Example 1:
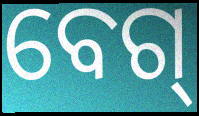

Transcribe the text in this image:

ବେଗ୍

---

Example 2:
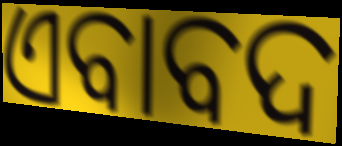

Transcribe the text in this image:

ଏବାବଦ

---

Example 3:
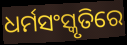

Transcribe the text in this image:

ଧର୍ମସଂସ୍କୃତିରେ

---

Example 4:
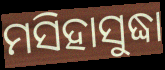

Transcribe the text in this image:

ମସିହାସୁଦ୍ଧା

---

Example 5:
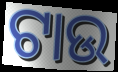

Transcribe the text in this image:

ଟାଉ